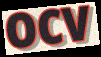
OCV